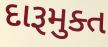
દારૂમુક્ત